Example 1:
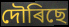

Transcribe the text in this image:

দৌৰিছে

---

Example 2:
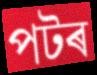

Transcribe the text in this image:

পটৰ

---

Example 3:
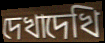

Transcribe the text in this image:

দেখাদেখি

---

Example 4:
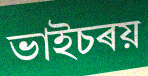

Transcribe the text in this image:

ভাইচৰয়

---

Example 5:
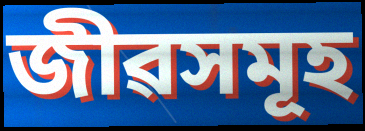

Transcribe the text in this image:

জীৱসমূহ